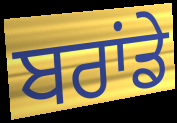
ਬਰਾਂਡੇ